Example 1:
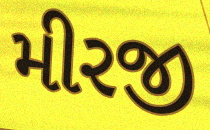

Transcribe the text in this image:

મીરજી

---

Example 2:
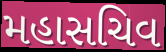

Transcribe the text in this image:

મહાસચિવ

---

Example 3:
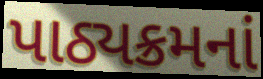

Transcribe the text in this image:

પાઠ્યક્રમનાં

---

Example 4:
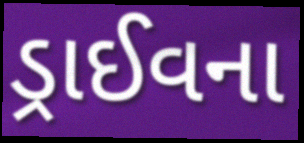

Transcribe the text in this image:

ડ્રાઈવના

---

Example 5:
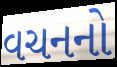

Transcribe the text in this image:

વચનનો